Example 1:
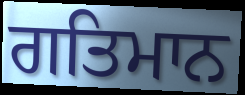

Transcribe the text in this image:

ਗਤਿਮਾਨ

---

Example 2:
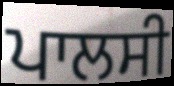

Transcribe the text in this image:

ਪਾਲਸੀ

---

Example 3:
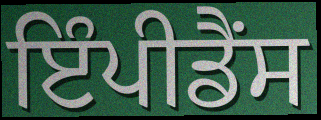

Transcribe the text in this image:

ਇੰਪੀਡੈਂਸ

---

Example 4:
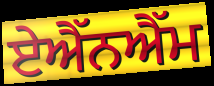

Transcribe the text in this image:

ਏਐੱਨਐੱਮ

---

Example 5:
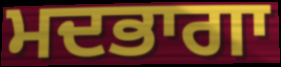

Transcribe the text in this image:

ਮਦਭਾਗਾ